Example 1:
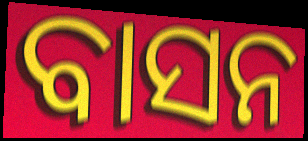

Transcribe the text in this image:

ବାସନ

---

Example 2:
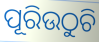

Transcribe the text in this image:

ପୂରିଉଠୁଚି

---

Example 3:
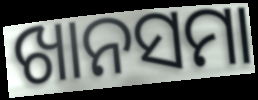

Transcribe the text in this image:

ଖାନସମା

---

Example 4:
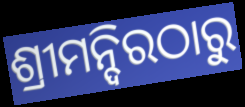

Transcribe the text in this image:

ଶ୍ରୀମନ୍ଦିରଠାରୁ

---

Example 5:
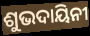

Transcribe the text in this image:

ଶୁଭଦାୟିନୀ